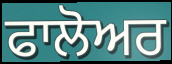
ਫਾਲੋਅਰ